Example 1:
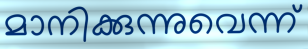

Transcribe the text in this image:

മാനിക്കുന്നുവെന്ന്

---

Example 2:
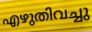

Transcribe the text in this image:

എഴുതിവച്ചു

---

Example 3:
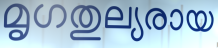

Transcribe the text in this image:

മൃഗതുല്യരായ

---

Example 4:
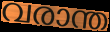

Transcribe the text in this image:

വരാന്ത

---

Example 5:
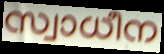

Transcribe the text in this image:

സ്വാധീന